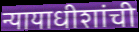
न्यायाधीशांची